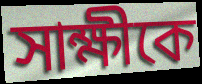
সাক্ষীকে